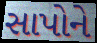
સાપોને